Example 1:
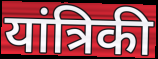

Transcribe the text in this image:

यांत्रिकी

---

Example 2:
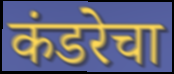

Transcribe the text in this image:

कंडरेचा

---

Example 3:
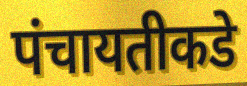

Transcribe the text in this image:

पंचायतीकडे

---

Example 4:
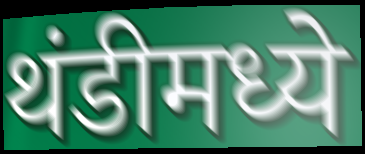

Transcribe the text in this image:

थंडीमध्ये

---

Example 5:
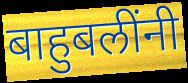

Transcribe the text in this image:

बाहुबलींनी